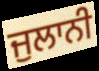
ਜੁਲਾਨੀ